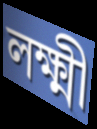
লক্ষ্মী